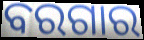
ବରଗାର